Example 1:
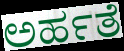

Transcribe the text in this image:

ಅರ್ಹತೆ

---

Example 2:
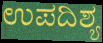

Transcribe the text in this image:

ಉಪದಿಶ್ಯ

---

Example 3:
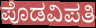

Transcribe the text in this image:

ಪೊಡವಿಪತಿ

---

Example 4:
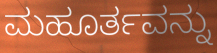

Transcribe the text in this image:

ಮಹೂರ್ತವನ್ನು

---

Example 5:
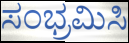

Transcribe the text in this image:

ಸಂಭ್ರಮಿಸಿ